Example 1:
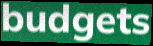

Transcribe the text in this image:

budgets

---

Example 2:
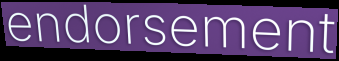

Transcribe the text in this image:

endorsement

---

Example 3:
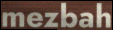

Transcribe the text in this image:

mezbah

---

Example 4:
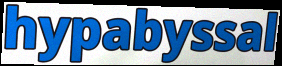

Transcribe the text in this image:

hypabyssal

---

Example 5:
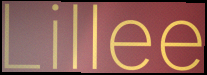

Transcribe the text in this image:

Lillee